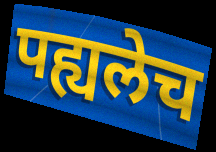
पह्यलेच